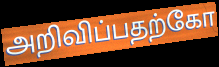
அறிவிப்பதற்கோ